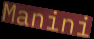
Manini